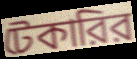
টেকারির